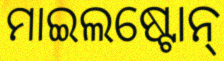
ମାଇଲଷ୍ଟୋନ୍